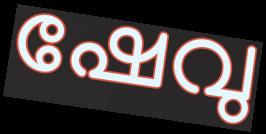
ഷേവു